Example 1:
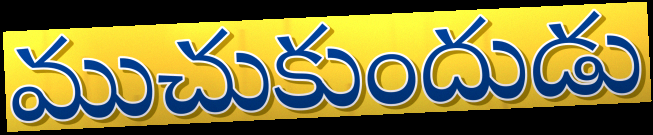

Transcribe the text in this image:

ముచుకుందుడు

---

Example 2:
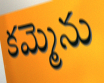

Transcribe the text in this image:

కమ్మెను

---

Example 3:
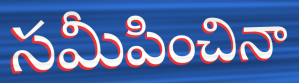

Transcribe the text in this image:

సమీపించినా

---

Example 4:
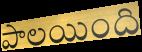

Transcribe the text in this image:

పాలయింది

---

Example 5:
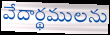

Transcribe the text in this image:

వేదార్థములను